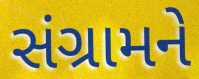
સંગ્રામને